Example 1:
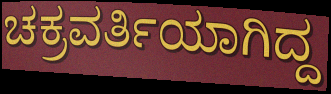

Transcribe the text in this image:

ಚಕ್ರವರ್ತಿಯಾಗಿದ್ದ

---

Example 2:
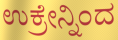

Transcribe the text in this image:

ಉಕ್ರೇನ್ನಿಂದ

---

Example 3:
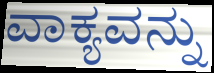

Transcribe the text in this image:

ವಾಕ್ಯವನ್ನು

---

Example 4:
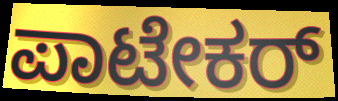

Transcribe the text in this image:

ಪಾಟೇಕರ್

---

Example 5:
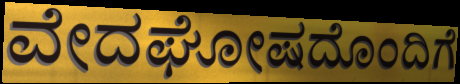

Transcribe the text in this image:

ವೇದಘೋಷದೊಂದಿಗೆ